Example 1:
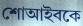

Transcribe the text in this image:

শোআইবকে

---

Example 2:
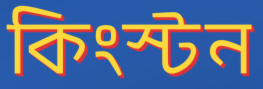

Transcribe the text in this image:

কিংস্টন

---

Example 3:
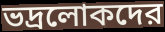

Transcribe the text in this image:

ভদ্রলোকদের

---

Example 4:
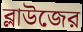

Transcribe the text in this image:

ব্লাউজের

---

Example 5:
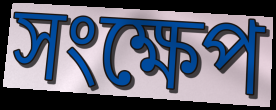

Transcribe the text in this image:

সংক্ষেপ